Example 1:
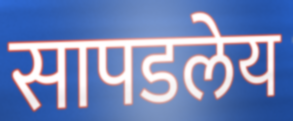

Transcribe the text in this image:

सापडलेय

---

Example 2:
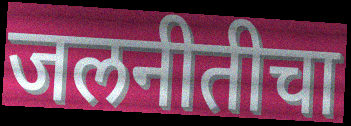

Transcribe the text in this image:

जलनीतीचा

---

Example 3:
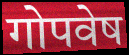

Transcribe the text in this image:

गोपवेष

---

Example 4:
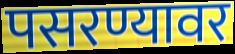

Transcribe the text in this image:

पसरण्यावर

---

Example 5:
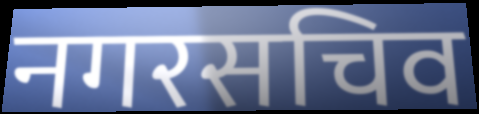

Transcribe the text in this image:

नगरसचिव